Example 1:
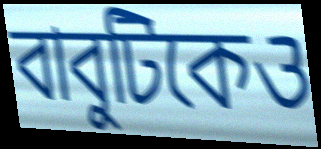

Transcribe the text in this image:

বাবুটিকেও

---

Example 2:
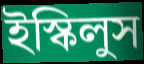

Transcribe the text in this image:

ইস্কিলুস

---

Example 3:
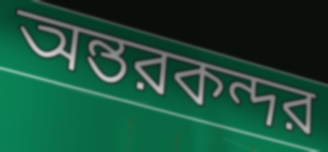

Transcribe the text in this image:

অন্তরকন্দর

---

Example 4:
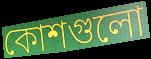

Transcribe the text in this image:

কোশগুলো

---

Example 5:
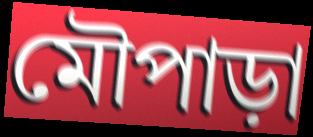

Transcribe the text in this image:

মৌপাড়া